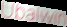
Ubalwin